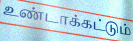
உண்டாக்கட்டும்